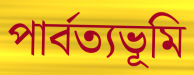
পার্বত্যভূমি